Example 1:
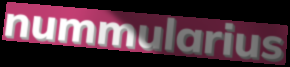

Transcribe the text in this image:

nummularius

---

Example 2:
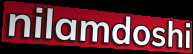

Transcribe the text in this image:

nilamdoshi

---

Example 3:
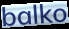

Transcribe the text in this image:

balko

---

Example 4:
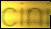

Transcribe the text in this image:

cini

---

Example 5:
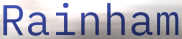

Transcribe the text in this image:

Rainham